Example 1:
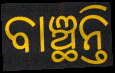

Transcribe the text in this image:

ବାଞ୍ଛନ୍ତି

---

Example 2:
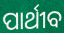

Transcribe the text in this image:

ପାର୍ଥୀବ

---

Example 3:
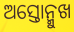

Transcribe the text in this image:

ଅସ୍ତୋନ୍ମୁଖ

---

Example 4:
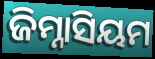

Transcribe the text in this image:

ଜିମ୍ନାସିୟମ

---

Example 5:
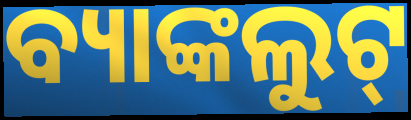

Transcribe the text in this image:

ବ୍ୟାଙ୍କଲୁଟ୍